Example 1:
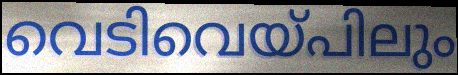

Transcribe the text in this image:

വെടിവെയ്പിലും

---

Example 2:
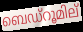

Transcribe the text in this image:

ബെഡ്റൂമില്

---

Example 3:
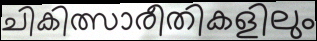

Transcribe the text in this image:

ചികിത്സാരീതികളിലും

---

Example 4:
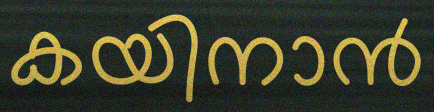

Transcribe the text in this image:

കയിനാൻ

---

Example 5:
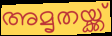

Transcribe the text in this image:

അമൃതയ്ക്ക്